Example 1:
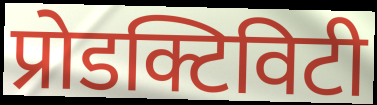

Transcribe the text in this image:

प्रोडक्टिविटी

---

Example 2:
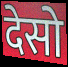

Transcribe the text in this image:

देसो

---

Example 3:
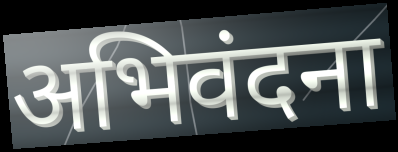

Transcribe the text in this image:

अभिवंदना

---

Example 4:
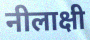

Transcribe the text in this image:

नीलाक्षी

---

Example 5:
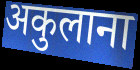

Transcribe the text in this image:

अकुलाना